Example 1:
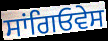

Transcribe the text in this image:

ਸਾਂਗਿਓਵੇਸ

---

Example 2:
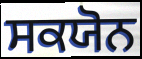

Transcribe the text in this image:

ਸਕਯੋਨ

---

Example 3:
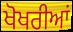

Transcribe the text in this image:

ਖੋਖਰੀਆਂ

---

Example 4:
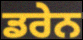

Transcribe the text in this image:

ਡਰੇਨ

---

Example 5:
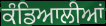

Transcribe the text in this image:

ਕੰਡਿਆਲੀਆਂ